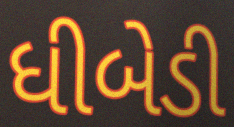
ધીબેડી